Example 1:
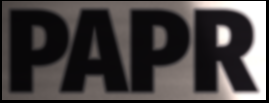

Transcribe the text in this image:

PAPR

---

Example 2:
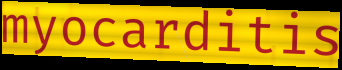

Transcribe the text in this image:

myocarditis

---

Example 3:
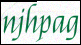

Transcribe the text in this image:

njhpag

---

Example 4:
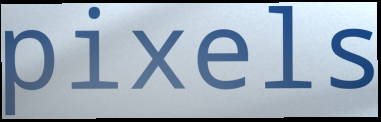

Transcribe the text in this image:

pixels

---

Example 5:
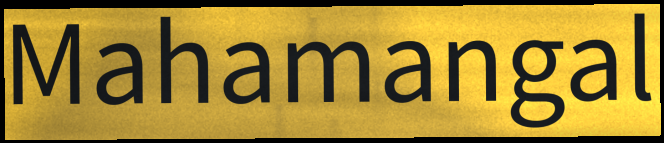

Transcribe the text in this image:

Mahamangal